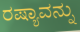
ರಷ್ಯಾವನ್ನು